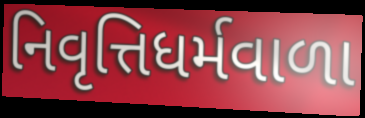
નિવૃત્તિધર્મવાળા